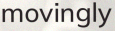
movingly